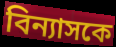
বিন্যাসকে